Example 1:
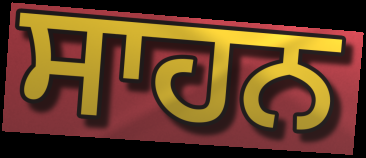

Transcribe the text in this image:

ਸਾਹਨ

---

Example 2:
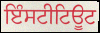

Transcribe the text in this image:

ਇੰਸਟੀਟਿਊਟ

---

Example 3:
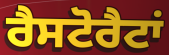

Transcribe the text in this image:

ਰੈਸਟੋਰੈਟਾਂ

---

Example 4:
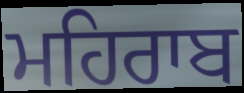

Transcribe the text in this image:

ਮਹਿਰਾਬ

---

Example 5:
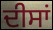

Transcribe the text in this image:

ਦੀਸਾਂ